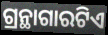
ଗ୍ରନ୍ଥାଗାରଟିଏ